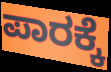
ಪಾರಕ್ಕೆ